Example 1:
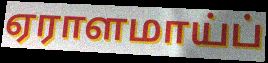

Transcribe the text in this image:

ஏராளமாய்ப்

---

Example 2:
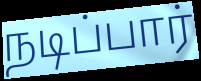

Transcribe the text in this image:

நடிப்பார்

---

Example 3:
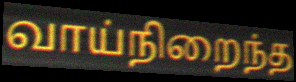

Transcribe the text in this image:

வாய்நிறைந்த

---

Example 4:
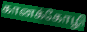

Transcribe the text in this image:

கானக்கோழி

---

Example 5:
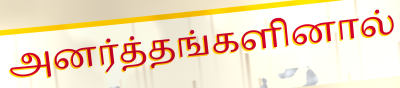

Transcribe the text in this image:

அனர்த்தங்களினால்